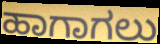
ಹಾಗಾಗಲು